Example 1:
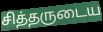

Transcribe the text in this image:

சித்தருடைய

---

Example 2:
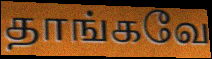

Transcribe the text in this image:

தாங்கவே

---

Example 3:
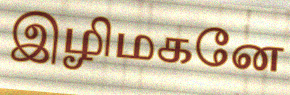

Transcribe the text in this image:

இழிமகனே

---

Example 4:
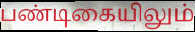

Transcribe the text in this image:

பண்டிகையிலும்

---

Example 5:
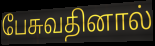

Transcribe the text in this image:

பேசுவதினால்